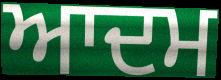
ਆਦਮ